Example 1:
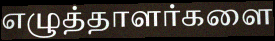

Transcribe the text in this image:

எழுத்தாளர்களை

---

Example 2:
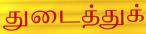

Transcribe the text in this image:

துடைத்துக்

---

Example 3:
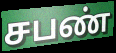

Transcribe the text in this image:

சபண்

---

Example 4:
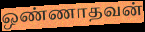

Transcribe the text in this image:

ஒண்ணாதவன்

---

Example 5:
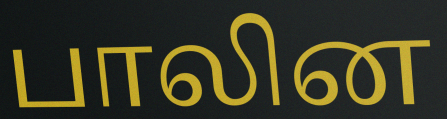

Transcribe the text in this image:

பாலின